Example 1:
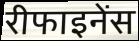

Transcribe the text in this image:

रीफाइनेंस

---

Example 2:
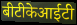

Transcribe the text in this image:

बीटीकेआईटी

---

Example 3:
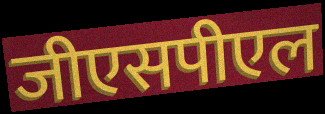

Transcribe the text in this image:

जीएसपीएल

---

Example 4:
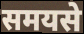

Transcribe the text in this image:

समयसे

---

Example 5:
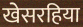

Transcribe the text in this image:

खेसरहिया